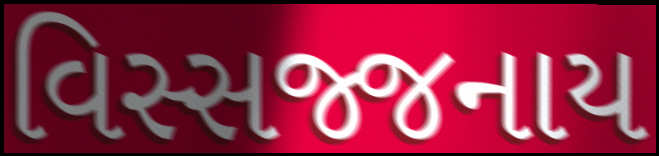
વિસ્સજ્જનાય